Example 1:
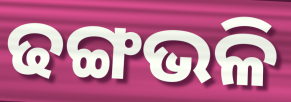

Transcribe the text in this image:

ଢଙ୍ଗଭଳି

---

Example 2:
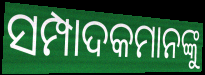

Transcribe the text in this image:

ସମ୍ପାଦକମାନଙ୍କୁ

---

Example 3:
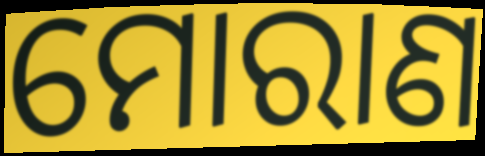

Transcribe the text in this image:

ମୋରାଣ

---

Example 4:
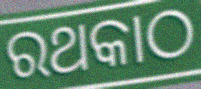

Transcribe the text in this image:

ରଥକାଠ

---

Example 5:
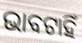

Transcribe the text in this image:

ଭାବଟାହିଁ